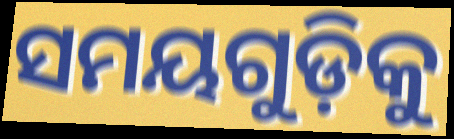
ସମୟଗୁଡ଼ିକୁ